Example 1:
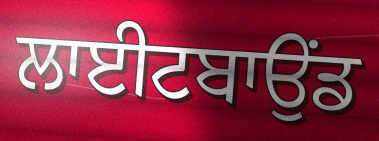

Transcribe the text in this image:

ਲਾਈਟਬਾਉਂਡ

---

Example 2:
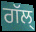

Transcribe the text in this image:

ਗੱਲ੍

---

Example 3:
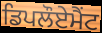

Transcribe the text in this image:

ਡਿਪਲੌਏਮੈਂਟ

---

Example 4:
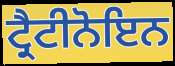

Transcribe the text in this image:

ਟ੍ਰੈਟੀਨੋਇਨ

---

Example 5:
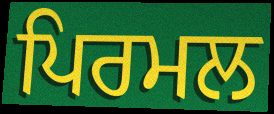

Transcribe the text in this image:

ਪਿਰਮਲ